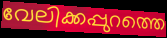
വേലിക്കപ്പുറത്തെ